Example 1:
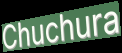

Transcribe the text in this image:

Chuchura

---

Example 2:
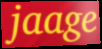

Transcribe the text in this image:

jaage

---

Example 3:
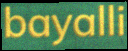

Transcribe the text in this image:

bayalli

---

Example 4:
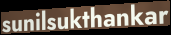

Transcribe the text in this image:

sunilsukthankar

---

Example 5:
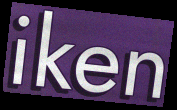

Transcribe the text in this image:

iken